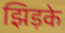
झिड़के